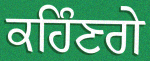
ਕਹਿੰਣਗੇ